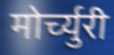
मोर्च्युरी